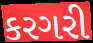
કરગરી